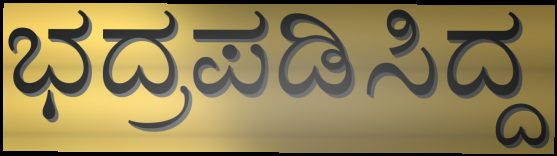
ಭದ್ರಪಡಿಸಿದ್ದ